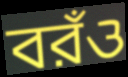
বরঁও